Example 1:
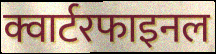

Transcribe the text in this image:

क्वार्टरफाइनल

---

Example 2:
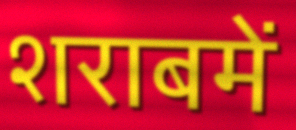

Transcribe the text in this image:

शराबमें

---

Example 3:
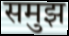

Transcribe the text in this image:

समुझ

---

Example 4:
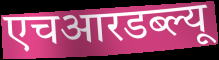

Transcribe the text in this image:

एचआरडब्ल्यू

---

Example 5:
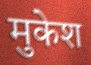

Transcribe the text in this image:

मुकेश